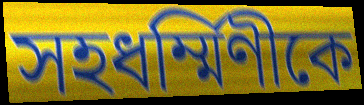
সহধর্ম্মিণীকে